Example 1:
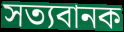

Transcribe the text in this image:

সত্যবানক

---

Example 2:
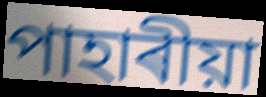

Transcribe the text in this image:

পাহাৰীয়া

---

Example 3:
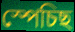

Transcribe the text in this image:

স্পেচিছ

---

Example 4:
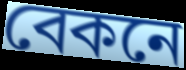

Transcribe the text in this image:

বেকনে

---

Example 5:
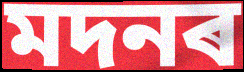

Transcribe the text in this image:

মদনৰ